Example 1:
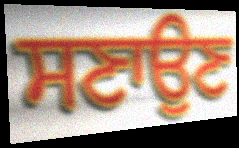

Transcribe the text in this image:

ਸਣਾਉਣ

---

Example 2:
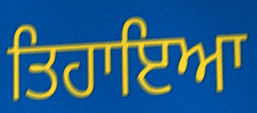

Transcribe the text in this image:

ਤਿਹਾਇਆ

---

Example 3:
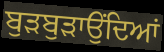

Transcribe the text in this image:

ਬੁੜਬੁੜਾਉਂਦਿਆਂ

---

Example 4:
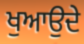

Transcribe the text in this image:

ਖੁਆਉਦੇ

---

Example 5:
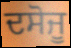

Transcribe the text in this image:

ਦਸੋਜੂ